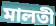
মালতী